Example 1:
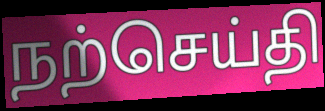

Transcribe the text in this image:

நற்செய்தி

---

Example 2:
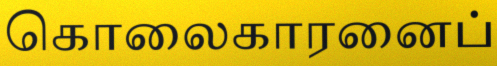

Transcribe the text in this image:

கொலைகாரனைப்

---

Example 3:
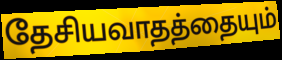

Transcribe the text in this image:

தேசியவாதத்தையும்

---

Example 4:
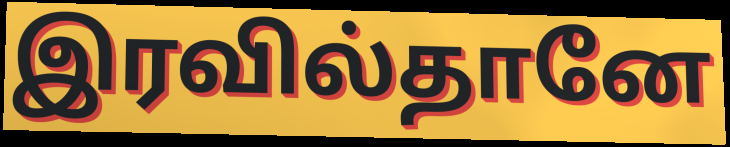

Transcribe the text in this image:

இரவில்தானே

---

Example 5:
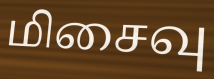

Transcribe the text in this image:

மிசைவு